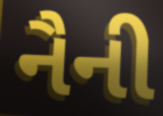
નૈની